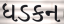
ધડકન